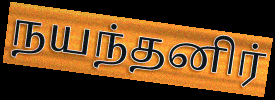
நயந்தனிர்